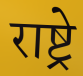
राष्ट्रे